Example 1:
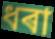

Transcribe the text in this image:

ধৰা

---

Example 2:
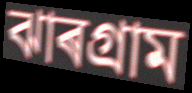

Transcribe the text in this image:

ঝাৰগ্ৰাম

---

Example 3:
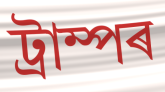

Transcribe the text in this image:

ট্ৰাম্পৰ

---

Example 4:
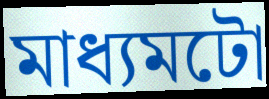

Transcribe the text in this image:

মাধ্যমটো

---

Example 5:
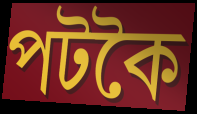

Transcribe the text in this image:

পটকৈ